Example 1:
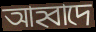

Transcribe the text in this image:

আহ্বাদে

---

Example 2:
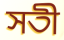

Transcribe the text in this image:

সতী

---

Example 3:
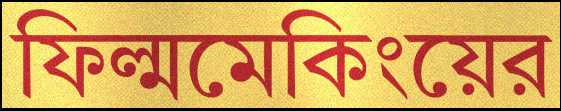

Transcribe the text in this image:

ফিল্মমেকিংয়ের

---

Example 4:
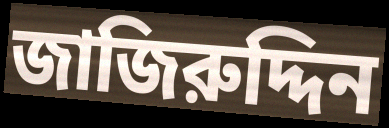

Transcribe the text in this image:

জাজিরুদ্দিন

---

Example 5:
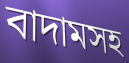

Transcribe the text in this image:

বাদামসহ